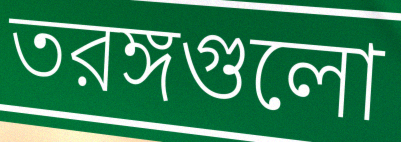
তরঙ্গগুলো